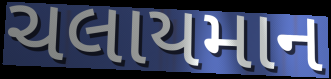
ચલાયમાન